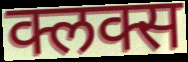
क्लक्स